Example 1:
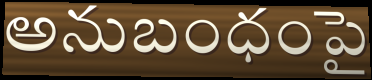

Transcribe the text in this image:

అనుబంధంపై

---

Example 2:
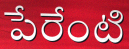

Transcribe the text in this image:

పేరేంటి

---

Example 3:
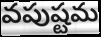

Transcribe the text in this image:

వపుష్టమ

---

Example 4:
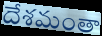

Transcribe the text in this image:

దేశమంతా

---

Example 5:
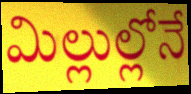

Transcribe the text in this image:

మిల్లుల్లోనే